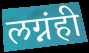
लग्नंही